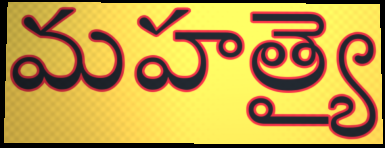
మహత్యై